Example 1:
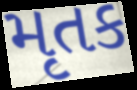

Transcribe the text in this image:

મૃતક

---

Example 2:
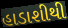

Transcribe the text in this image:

હાડાશીથી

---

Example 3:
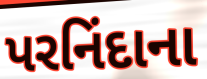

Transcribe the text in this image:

પરનિંદાના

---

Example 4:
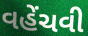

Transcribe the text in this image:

વહેંચવી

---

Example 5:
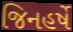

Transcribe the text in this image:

જિનહર્ષે